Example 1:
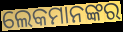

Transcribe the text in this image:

ଲେକମାନଙ୍କର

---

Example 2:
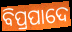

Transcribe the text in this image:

ବିପ୍ରପାଦେ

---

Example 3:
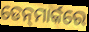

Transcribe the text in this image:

ଡେନ୍‍ମାର୍କରେ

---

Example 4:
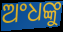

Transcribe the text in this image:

ଅଂଧଙ୍କୁ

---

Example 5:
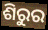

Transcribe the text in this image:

ଶିରୁର